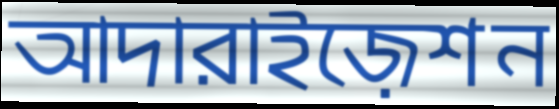
আদারাইজ়েশন